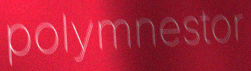
polymnestor